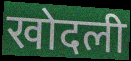
खोदली